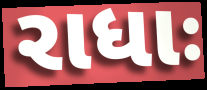
રાધાઃ